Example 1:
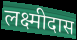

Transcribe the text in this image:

लक्ष्मीदास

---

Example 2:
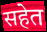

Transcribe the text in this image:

सहेत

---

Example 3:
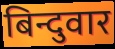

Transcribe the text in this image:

बिन्‍दुवार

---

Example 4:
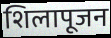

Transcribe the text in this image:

शिलापूजन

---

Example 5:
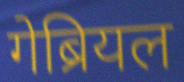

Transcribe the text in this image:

गेब्रियल